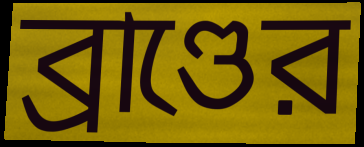
ব্রাণ্ডের